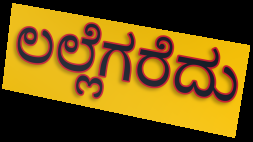
ಲಲ್ಲೆಗರೆದು